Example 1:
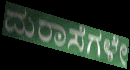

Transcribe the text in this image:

ದುರಾಸೆಗಳೇ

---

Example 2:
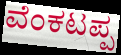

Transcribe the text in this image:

ವೆಂಕಟಪ್ಪ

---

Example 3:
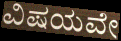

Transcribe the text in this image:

ವಿಷಯವೇ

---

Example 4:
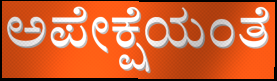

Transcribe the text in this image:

ಅಪೇಕ್ಷೆಯಂತೆ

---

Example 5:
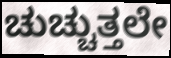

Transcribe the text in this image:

ಚುಚ್ಚುತ್ತಲೇ